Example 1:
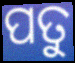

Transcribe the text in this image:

ପତୁ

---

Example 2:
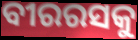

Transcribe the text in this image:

ବୀରରସକୁ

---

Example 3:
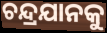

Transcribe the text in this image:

ଚନ୍ଦ୍ରଯାନକୁ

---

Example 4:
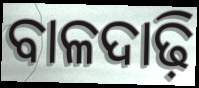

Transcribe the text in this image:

ବାଳଦାଢ଼ି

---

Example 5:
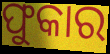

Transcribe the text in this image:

ଫୁକାର